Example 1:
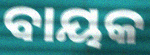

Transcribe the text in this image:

ବାୟକ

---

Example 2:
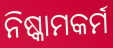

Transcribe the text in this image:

ନିଷ୍କାମକର୍ମ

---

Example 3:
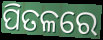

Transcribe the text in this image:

ପିତଳରେ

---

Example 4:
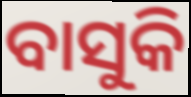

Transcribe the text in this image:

ବାସୁକି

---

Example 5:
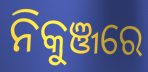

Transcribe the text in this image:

ନିକୁଞ୍ଜରେ